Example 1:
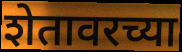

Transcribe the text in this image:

शेतावरच्या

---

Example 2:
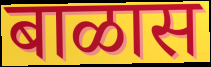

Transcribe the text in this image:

बाळास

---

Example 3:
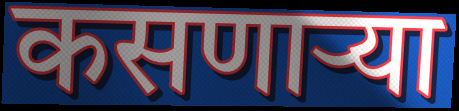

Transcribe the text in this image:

कसणाऱ्या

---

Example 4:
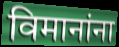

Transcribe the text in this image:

विमानांना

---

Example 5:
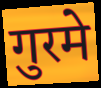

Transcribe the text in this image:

गुरमे